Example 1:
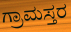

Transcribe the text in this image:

ಗ್ರಾಮಸ್ತರ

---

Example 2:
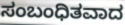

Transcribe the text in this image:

ಸಂಬಂಧಿತವಾದ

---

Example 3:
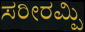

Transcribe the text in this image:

ಸರೀರಮ್ಪಿ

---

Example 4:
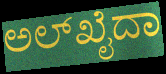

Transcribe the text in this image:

ಅಲ್‌ಖೈದಾ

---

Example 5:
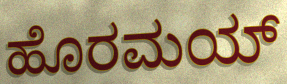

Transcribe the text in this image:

ಹೊರಮಯ್